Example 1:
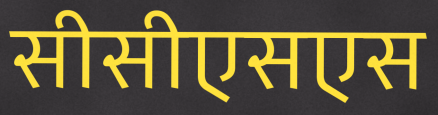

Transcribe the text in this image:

सीसीएसएस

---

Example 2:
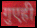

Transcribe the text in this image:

गुएही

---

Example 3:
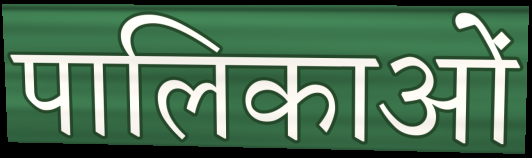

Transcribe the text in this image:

पालिकाओं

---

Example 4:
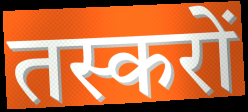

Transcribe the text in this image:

तस्करों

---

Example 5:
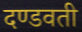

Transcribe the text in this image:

दण्डवती